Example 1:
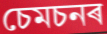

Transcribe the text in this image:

চেমচনৰ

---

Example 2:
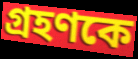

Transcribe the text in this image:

গ্ৰহণকে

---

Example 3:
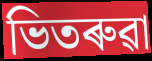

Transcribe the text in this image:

ভিতৰুৱা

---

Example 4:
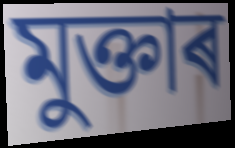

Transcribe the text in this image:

মুক্তাৰ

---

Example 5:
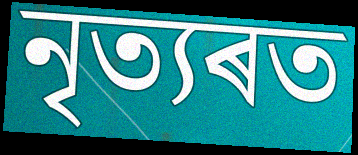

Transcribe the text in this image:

নৃত্যৰত